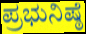
ಪ್ರಭುನಿಷ್ಠೆ